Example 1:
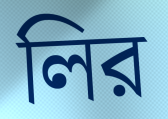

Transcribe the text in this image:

লির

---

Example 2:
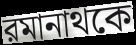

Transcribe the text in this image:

রমানাথকে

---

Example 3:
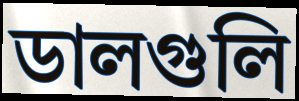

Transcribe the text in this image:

ডালগুলি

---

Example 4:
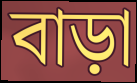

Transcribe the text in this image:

বাড়া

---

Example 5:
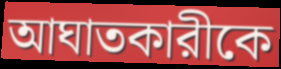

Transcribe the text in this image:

আঘাতকারীকে